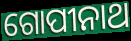
ଗୋପୀନାଥ